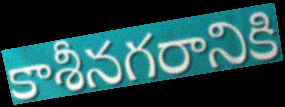
కాశీనగరానికి